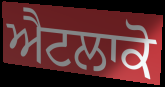
ਐਟਲਾਕੋ